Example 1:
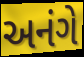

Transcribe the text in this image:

અનંગે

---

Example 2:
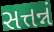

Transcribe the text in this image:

સત્તન્નં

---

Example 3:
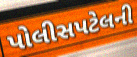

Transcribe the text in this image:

પોલીસપટેલની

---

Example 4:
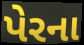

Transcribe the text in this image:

પેરના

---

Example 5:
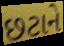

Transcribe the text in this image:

છટાને